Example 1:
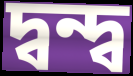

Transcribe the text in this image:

দ্বন্দ্ব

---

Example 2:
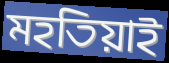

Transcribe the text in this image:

মহতিয়াই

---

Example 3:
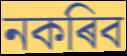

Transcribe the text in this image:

নকৰিব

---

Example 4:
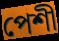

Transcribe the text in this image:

পেশী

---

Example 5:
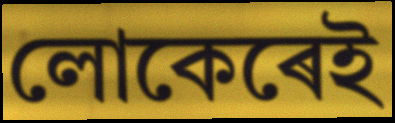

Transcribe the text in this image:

লোকেৰেই